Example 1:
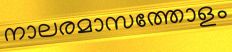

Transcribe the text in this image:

നാലരമാസത്തോളം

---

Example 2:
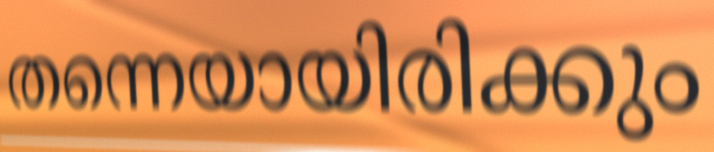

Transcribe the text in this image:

തന്നെയായിരിക്കും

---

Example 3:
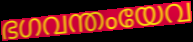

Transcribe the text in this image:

ഭഗവന്തംയേവ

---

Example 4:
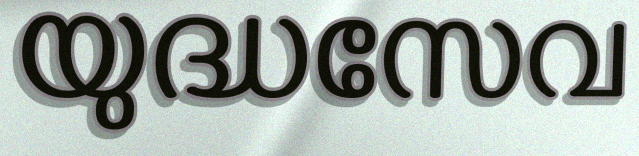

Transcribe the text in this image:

യുദ്ധസേവ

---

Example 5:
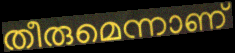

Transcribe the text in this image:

തീരുമെന്നാണ്